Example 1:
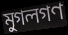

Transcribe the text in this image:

মুগলগণ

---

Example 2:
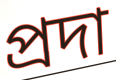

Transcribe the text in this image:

প্রদা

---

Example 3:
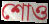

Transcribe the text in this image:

শোও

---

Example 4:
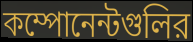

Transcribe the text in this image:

কম্পোনেন্টগুলির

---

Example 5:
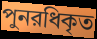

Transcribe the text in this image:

পুনরধিকৃত